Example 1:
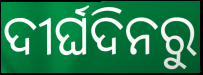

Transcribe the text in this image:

ଦୀର୍ଘଦିନରୁ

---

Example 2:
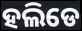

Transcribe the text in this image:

ହଲିଡେ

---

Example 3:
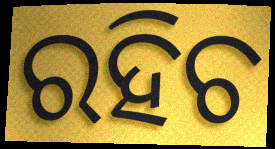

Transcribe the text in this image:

ରହିଚ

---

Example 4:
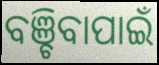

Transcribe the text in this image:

ବଞ୍ଚିବାପାଇଁ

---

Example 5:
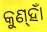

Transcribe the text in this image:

କୁଣ୍‌ହାଁ